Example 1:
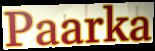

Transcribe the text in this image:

Paarka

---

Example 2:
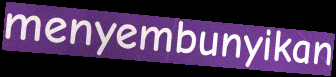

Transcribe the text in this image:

menyembunyikan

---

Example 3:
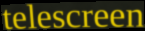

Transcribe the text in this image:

telescreen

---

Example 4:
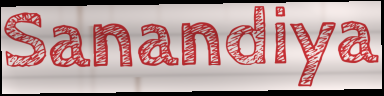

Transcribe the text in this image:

Sanandiya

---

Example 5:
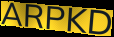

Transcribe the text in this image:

ARPKD